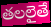
తలలైతే